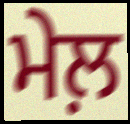
ਮੇਲ਼